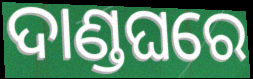
ଦାଣ୍ଡଘରେ